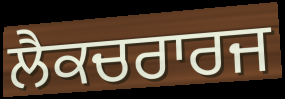
ਲੈਕਚਰਾਰਜ